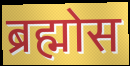
ब्रह्मोस